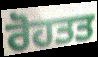
ਰੋਹਤਤ